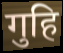
गुहि